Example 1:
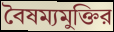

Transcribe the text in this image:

বৈষম্যমুক্তির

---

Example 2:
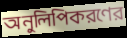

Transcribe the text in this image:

অনুলিপিকরণের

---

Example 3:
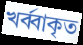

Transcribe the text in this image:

খর্ব্বাকৃত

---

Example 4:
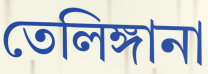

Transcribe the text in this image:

তেলিঙ্গানা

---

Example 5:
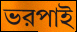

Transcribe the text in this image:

ভরপাই